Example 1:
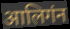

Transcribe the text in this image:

आलिगंन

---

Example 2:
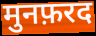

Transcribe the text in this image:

मुनफ़रद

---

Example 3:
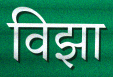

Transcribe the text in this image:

विझा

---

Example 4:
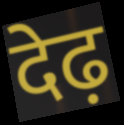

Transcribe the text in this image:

देढ़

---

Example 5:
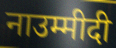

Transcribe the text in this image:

नाउम्मीदी